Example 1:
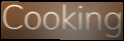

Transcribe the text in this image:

Cooking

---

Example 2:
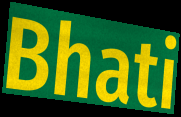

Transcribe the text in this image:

Bhati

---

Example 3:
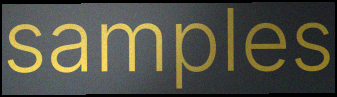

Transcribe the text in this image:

samples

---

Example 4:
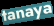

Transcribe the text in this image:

tanaya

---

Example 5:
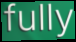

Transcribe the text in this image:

fully